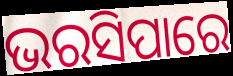
ଭରସିପାରେ